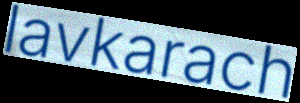
lavkarach